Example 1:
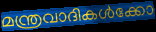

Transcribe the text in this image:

മന്ത്രവാദികൾക്കോ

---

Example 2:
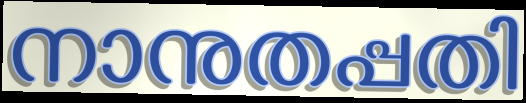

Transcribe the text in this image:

നാനുതപ്പതി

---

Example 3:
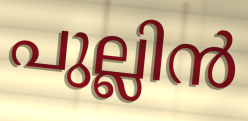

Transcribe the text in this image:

പുല്ലിൻ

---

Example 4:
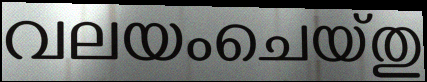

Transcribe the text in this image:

വലയംചെയ്തു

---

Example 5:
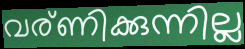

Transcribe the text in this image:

വര്ണിക്കുന്നില്ല